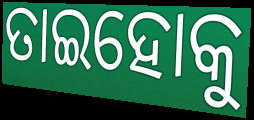
ତାଇହୋକୁ